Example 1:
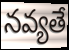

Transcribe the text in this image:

నవ్యతే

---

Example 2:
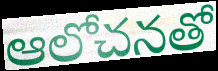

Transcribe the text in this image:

ఆలోచనతో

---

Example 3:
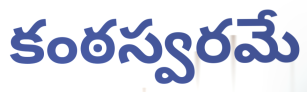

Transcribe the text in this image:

కంఠస్వరమే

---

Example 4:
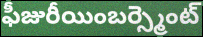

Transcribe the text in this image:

ఫీజురీయింబర్స్మెంట్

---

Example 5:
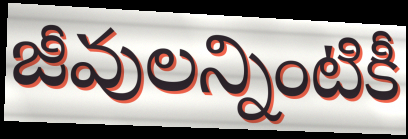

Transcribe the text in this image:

జీవులన్నింటికీ